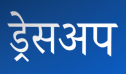
ड्रेसअप